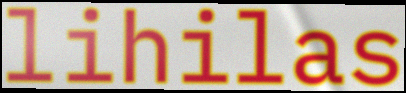
lihilas